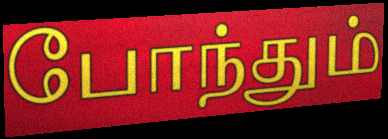
போந்தும்